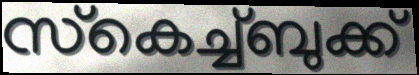
സ്‌കെച്ച്ബുക്ക്